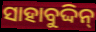
ସାହାବୁଦ୍ଦିନ୍